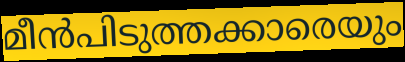
മീൻപിടുത്തക്കാരെയും